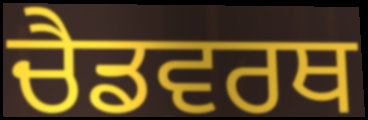
ਚੈਡਵਰਥ